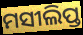
ମସୀଲିପ୍ତ